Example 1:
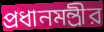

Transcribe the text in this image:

প্রধানমন্ত্রীর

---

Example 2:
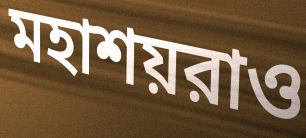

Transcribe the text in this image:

মহাশয়রাও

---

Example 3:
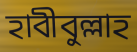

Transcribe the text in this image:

হাবীবুল্লাহ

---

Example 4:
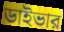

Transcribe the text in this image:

ডাইভার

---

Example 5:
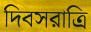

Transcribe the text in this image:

দিবসরাত্রি